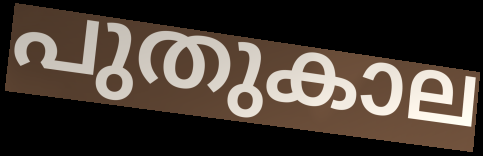
പുതുകാല